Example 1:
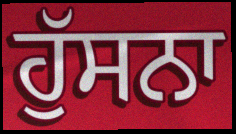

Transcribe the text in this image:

ਹੁੱਸਨਾ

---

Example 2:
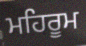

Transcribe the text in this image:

ਮਹਿਰੂਮ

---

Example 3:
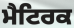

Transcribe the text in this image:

ਮੈਟਿਰਕ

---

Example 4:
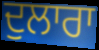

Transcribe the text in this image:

ਦੁਲਾਰਾ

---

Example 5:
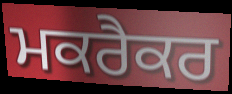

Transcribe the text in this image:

ਮਕਰੈਕਰ